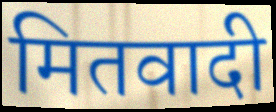
मितवादी